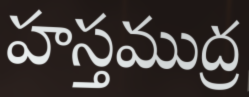
హస్తముద్ర